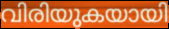
വിരിയുകയായി